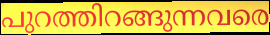
പുറത്തിറങ്ങുന്നവരെ